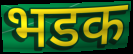
भडक